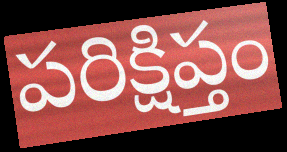
పరిక్షిప్తం